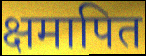
क्षमापित